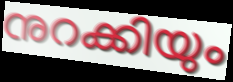
നുറക്കിയും